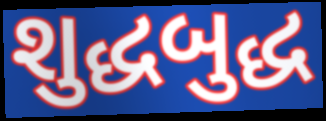
શુદ્ધબુદ્ધ